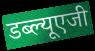
डब्ल्यूएजी